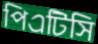
পিএটিসি